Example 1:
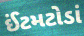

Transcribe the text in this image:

ઈંટમટોડાં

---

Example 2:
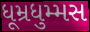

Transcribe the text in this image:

ધૂમ્રધુમ્મસ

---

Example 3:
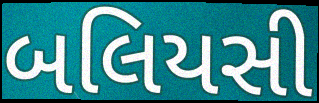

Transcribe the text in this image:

બલિયસી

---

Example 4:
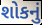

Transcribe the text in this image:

શોકનું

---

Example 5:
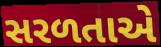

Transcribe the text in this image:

સરળતાએ